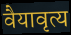
वैयावृत्य